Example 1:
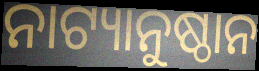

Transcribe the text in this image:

ନାଟ୍ୟାନୁଷ୍ଠାନ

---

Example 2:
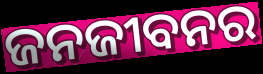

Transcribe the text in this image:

ଜନଜୀବନର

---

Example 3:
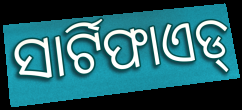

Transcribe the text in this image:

ସାର୍ଟିଫାଏଡ୍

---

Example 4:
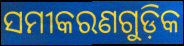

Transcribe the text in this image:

ସମୀକରଣଗୁଡ଼ିକ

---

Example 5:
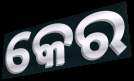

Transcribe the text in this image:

କେର